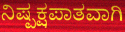
ನಿಷ್ಪಕ್ಷಪಾತವಾಗಿ